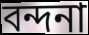
বন্দনা